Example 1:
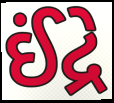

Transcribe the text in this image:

ઈંદ્રે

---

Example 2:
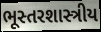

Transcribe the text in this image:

ભૂસ્તરશાસ્ત્રીય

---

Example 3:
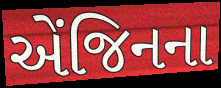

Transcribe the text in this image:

એંજિનના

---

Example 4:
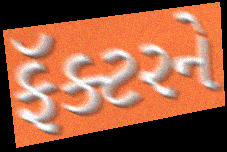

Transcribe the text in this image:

ફૅક્ટરને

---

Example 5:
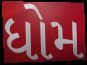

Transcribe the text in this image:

ધોમ